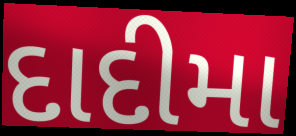
દાદીમા